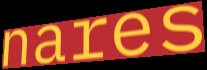
nares